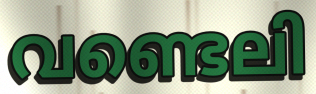
വണ്ടെലി